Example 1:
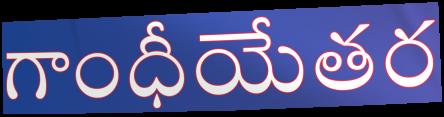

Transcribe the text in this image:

గాంధీయేతర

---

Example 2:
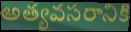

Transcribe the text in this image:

అత్యవసరానికి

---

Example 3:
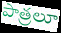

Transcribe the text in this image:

పాత్రలూ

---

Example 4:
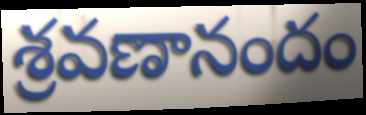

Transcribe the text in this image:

శ్రవణానందం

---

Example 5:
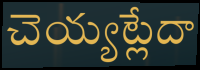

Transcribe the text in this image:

చెయ్యట్లేదా